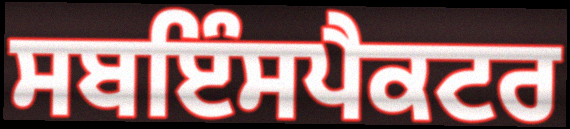
ਸਬਇੰਸਪੈਕਟਰ